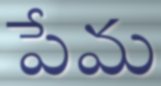
పేమ